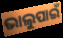
ଭାଲୁପାଇଁ